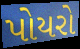
પોયરો